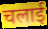
चलाई